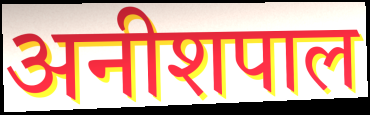
अनीशपाल